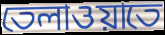
তেলাওয়াতে